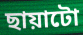
ছায়াটো